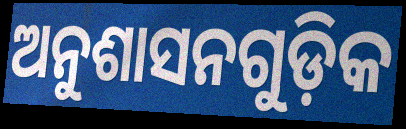
ଅନୁଶାସନଗୁଡ଼ିକ